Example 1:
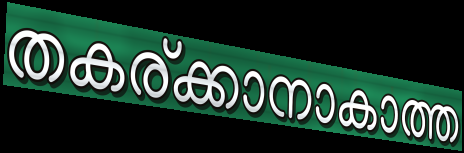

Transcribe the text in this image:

തകര്ക്കാനാകാത്ത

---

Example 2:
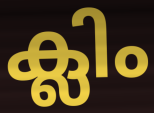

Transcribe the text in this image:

ക്ലിം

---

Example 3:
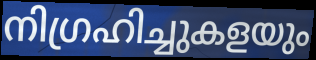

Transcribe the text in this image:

നിഗ്രഹിച്ചുകളയും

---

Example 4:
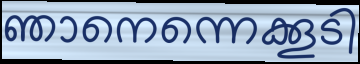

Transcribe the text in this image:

ഞാനെന്നെക്കൂടി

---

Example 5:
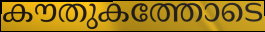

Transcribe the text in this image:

കൗതുകത്തോടെ